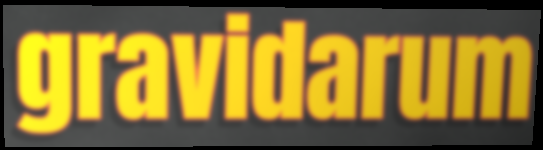
gravidarum